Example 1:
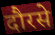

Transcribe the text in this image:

दौरसे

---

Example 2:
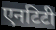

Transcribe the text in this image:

एनटिटी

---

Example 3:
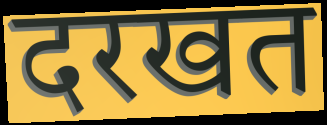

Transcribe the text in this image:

दरखत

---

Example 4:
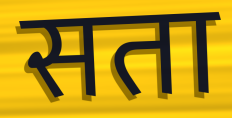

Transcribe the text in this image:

सता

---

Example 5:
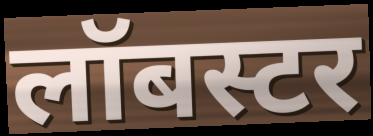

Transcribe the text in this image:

लॉबस्टर